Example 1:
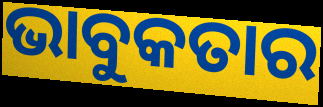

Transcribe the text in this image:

ଭାବୁକତାର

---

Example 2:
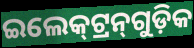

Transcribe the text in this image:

ଇଲେକ୍‍ଟ୍ରନ୍‍ଗୁଡ଼ିକ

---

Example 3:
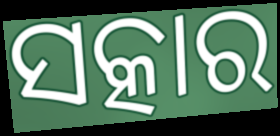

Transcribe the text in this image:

ସତ୍କାର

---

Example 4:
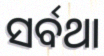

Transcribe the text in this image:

ସର୍ବଥା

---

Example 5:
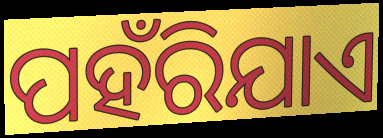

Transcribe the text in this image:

ପହଁରିଯାଏ